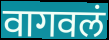
वागवलं